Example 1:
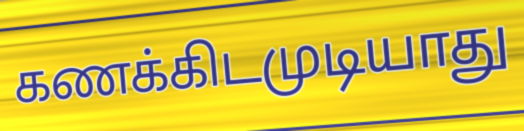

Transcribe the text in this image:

கணக்கிடமுடியாது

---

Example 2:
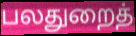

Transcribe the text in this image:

பலதுறைத்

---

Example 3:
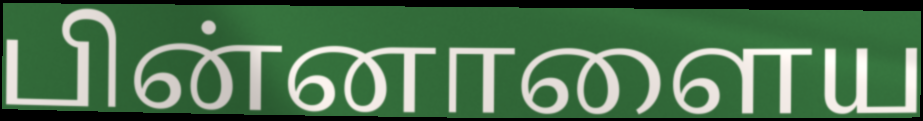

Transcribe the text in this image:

பின்னாளைய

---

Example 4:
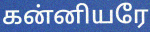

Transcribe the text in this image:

கன்னியரே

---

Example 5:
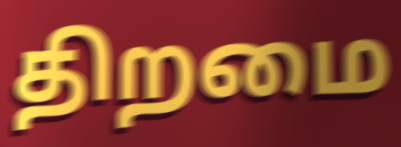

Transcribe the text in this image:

திறமை